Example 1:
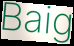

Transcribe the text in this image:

Baig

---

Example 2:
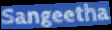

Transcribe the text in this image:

Sangeetha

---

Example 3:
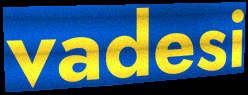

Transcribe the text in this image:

vadesi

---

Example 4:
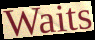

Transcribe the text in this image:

Waits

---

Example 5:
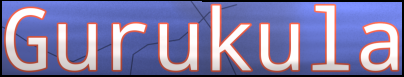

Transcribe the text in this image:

Gurukula